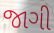
જાગી